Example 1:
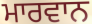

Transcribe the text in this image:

ਮਾਰਵਾਨ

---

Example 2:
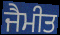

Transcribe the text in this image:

ਜੈਮੀਤ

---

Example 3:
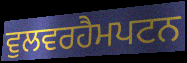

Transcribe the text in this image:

ਵੁਲਵਰਹੈਮਪਟਨ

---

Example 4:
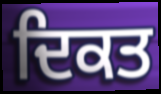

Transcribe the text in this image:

ਦਿਕਤ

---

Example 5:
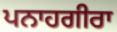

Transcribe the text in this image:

ਪਨਾਹਗੀਰਾ